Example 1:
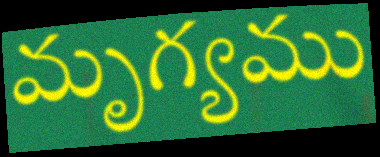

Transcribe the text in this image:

మృగ్యము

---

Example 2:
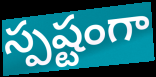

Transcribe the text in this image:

స్పష్టంగా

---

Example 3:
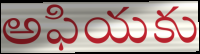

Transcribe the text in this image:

అఫియకు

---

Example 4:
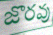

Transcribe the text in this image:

జొరవు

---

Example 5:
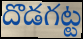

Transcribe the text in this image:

దొడగట్ట